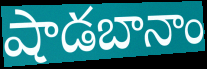
షాడబానాం